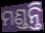
ମଣ୍ଡନ୍ତି